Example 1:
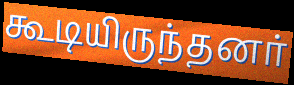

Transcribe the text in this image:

கூடியிருந்தனர்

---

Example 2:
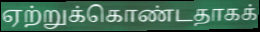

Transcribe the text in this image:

ஏற்றுக்கொண்டதாகக்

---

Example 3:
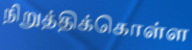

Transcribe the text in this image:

நிறுத்திக்கொள்ள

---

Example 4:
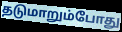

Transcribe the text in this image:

தடுமாறும்போது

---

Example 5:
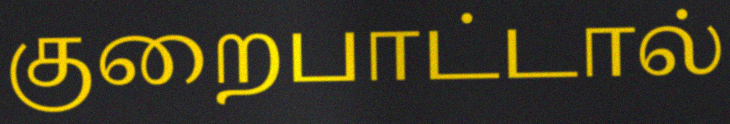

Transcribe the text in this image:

குறைபாட்டால்